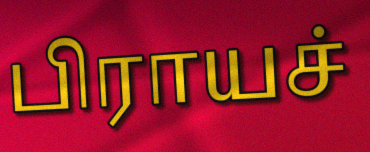
பிராயச்